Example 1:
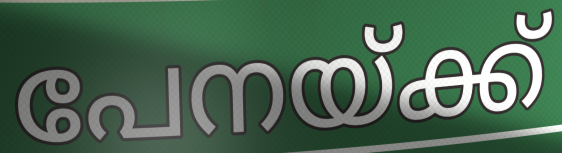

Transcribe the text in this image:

പേനയ്ക്ക്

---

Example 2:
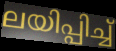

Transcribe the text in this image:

ലയിപ്പിച്ച്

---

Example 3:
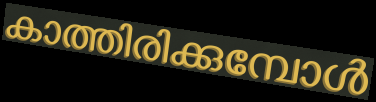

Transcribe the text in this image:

കാത്തിരിക്കുമ്പോൾ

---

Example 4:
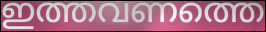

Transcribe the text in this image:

ഇത്തവണത്തെ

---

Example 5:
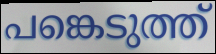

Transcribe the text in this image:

പങ്കെടുത്ത്